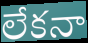
లేకనా